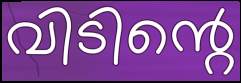
വിടിന്റെ